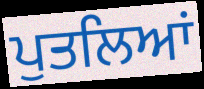
ਪੁਤਲਿਆਂ